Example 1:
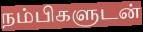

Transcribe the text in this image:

நம்பிகளுடன்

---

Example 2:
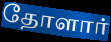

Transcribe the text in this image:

தோளார்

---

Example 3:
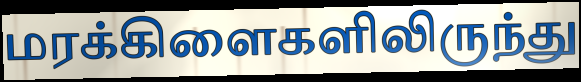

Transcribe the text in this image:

மரக்கிளைகளிலிருந்து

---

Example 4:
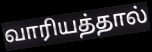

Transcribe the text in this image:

வாரியத்தால்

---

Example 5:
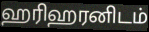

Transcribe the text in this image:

ஹரிஹரனிடம்